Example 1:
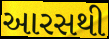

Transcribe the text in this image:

આરસથી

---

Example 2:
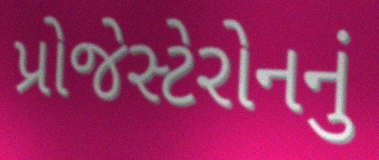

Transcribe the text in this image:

પ્રોજેસ્ટેરોનનું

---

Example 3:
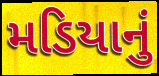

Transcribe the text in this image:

મડિયાનું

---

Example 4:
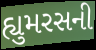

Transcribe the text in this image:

હ્યુમરસની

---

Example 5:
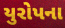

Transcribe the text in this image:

યુરોપના